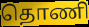
தொணி